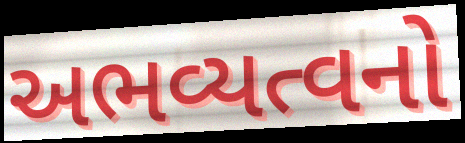
અભવ્યત્વનો